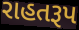
રાહતરૂપ